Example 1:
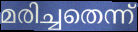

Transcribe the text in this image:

മരിച്ചതെന്ന്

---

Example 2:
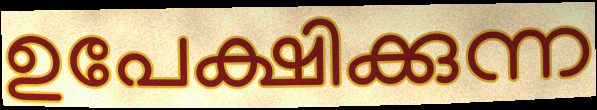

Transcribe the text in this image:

ഉപേക്ഷിക്കുന്ന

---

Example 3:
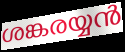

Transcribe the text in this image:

ശങ്കരയ്യൻ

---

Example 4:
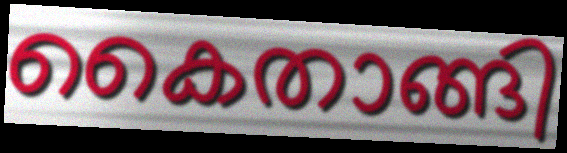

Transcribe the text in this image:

കൈതാങ്ങി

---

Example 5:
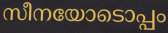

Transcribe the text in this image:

സീനയോടൊപ്പം